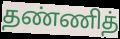
தண்ணித்